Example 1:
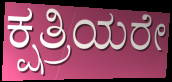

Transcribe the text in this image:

ಕ್ಷತ್ರಿಯರೇ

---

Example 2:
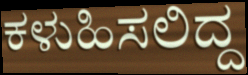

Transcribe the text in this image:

ಕಳುಹಿಸಲಿದ್ದ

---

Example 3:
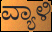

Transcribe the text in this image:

ವ್ಯಾಳಿ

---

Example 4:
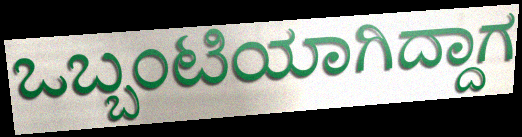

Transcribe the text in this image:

ಒಬ್ಬಂಟಿಯಾಗಿದ್ದಾಗ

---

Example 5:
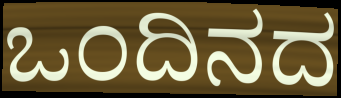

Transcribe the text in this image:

ಒಂದಿನದ